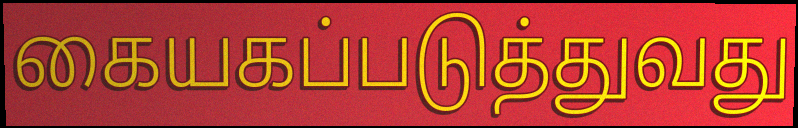
கையகப்படுத்துவது